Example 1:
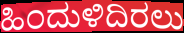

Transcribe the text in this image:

ಹಿಂದುಳಿದಿರಲು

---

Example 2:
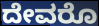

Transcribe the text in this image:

ದೇವರೊ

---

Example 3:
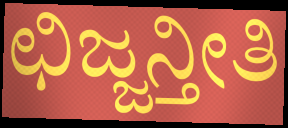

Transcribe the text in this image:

ಛಿಜ್ಜನ್ತೀತಿ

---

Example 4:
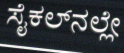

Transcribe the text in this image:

ಸೈಕಲ್‌ನಲ್ಲೇ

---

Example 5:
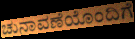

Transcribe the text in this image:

ಚುನಾವಣೆಯೊಂದಿಗೆ